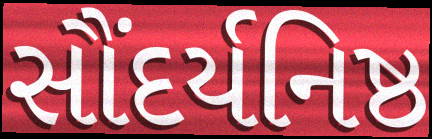
સૌંદર્યનિષ્ઠ